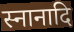
स्नानादि